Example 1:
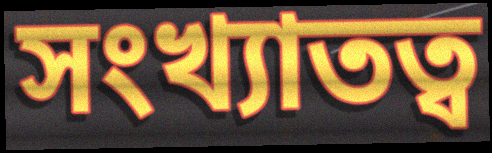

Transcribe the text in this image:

সংখ্যাতত্ব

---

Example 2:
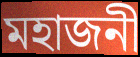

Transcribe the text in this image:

মহাজনী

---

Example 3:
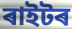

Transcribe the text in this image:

ৰাইটৰ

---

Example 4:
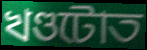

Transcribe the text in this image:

খণ্ডটোত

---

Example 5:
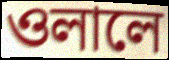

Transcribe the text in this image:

ওলালে